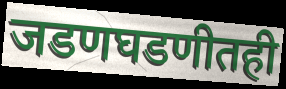
जडणघडणीतही